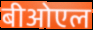
बीओएल